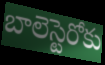
బాలెస్టెరోకు